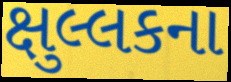
ક્ષુલ્લકના